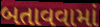
બતાવવામાં